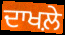
ਦਾਖਲ਼ੇ